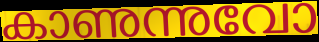
കാണുന്നുവോ